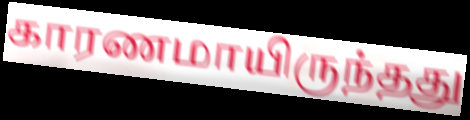
காரணமாயிருந்தது